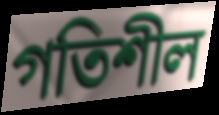
গতিশীল